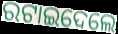
ରଟାଇଦେଲେ